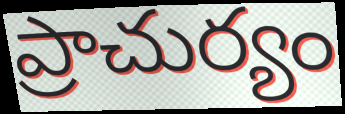
ప్రాచుర్యం